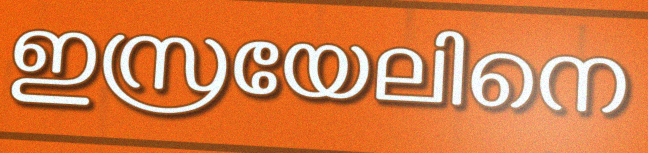
ഇസ്രയേലിനെ